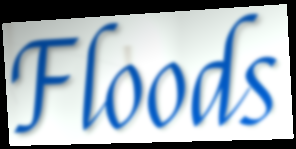
Floods